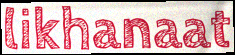
likhanaat